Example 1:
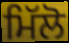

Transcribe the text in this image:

ਮਿੱਲੋ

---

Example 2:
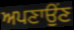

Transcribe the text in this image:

ਅਪਣਾਉਂਣ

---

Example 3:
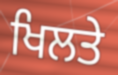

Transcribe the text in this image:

ਖਿਲਤੇ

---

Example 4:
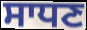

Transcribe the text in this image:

ਸਾਧਣ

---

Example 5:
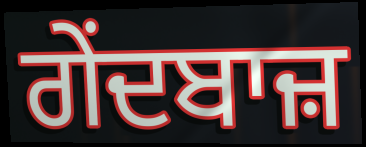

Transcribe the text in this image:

ਗੇਂਦਬਾਜ਼